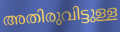
അതിരുവിട്ടുള്ള